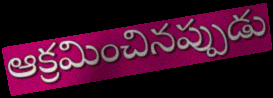
ఆక్రమించినప్పుడు